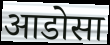
आडोसा